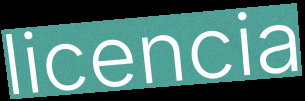
licencia